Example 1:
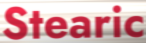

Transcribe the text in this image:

Stearic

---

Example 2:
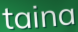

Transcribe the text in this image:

taina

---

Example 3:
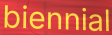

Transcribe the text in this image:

biennial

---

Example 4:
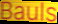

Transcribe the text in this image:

Bauls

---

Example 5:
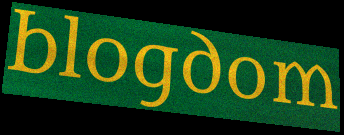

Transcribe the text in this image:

blogdom